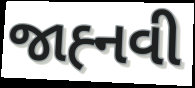
જાહ્‍નવી